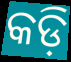
କଡ଼ି